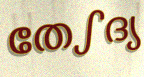
തേഽദ്യ